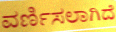
ವರ್ಣಿಸಲಾಗಿದೆ